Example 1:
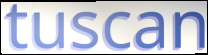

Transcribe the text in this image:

tuscan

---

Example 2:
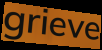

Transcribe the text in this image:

grieve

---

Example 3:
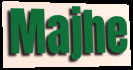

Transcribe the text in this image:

Majhe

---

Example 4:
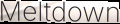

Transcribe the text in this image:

Meltdown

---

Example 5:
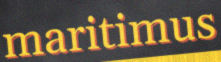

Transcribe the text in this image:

maritimus